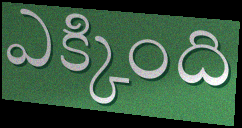
ఎక్కింది